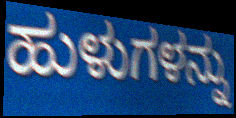
ಹುಳುಗಳನ್ನು